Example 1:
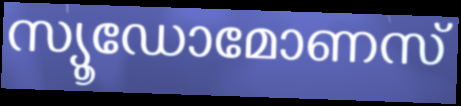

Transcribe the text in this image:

സ്യൂഡോമോണസ്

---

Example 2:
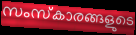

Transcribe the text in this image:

സംസ്കാരങ്ങളുടെ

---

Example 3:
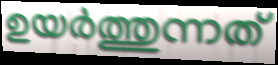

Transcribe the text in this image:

ഉയർത്തുന്നത്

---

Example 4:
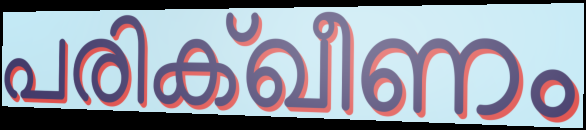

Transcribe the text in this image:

പരിക്ഖീണം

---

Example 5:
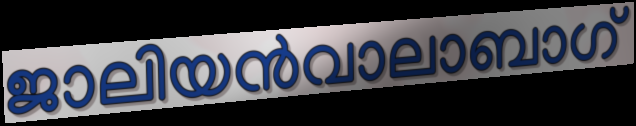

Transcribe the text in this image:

ജാലിയൻവാലാബാഗ്